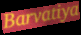
Barvatiya